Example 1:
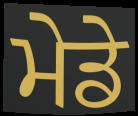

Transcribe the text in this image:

ਮੇਡੇ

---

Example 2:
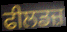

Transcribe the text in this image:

ਫੀਲਡਜ਼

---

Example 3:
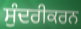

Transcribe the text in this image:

ਸੁੰਦਰੀਕਰਨ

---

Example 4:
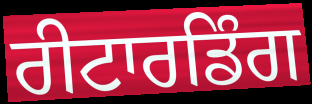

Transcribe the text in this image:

ਰੀਟਾਰਡਿੰਗ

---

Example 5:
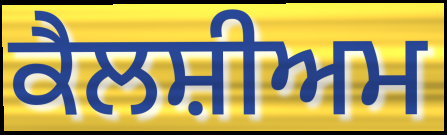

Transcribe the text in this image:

ਕੈਲਸ਼ੀਅਮ